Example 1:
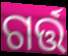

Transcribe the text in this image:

ଗର୍ତ୍ତ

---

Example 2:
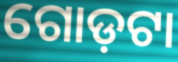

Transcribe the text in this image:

ଗୋଡ଼ଟା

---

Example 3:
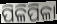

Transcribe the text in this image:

ପିଳିପିଳା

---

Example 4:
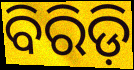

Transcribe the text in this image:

ବିରିଡ଼ି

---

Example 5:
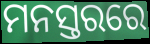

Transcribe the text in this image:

ମନସ୍ତରରେ